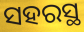
ସହରସ୍ଥ